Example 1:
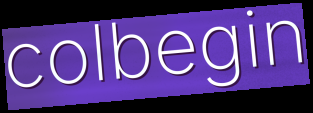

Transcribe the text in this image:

colbegin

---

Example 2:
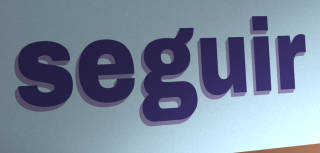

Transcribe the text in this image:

seguir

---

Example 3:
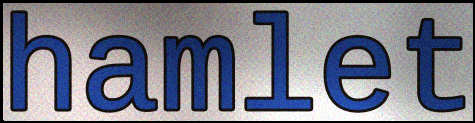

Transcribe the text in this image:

hamlet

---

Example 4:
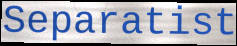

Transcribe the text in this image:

Separatist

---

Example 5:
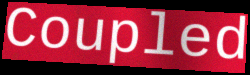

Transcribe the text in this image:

Coupled